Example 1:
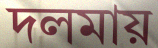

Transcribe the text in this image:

দলমায়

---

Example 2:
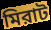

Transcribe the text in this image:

মিরাট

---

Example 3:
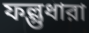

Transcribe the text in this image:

ফল্গুধারা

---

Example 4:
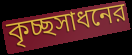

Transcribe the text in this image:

কৃচ্ছসাধনের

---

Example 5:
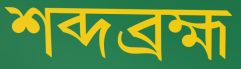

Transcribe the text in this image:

শব্দব্রহ্ম